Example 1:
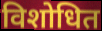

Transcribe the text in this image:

विशोधित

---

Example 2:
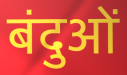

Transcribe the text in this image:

बंदुओं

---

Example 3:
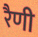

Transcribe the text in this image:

रैणी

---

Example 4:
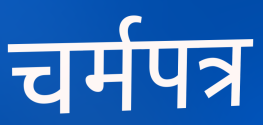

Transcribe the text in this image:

चर्मपत्र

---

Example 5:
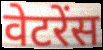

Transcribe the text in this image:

वेटरेंस